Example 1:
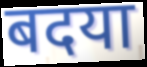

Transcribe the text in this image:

बदया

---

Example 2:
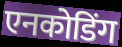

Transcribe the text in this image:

एनकोडिंग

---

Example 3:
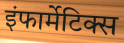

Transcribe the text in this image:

इंफार्मेटिक्स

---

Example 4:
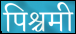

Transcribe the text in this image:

पिश्चमी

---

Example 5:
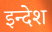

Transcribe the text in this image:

इन्देश